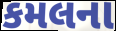
કમલના